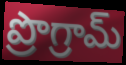
ప్రొగ్రామ్